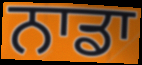
ਨਾਡਾ